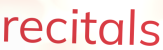
recitals